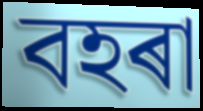
বহৰা